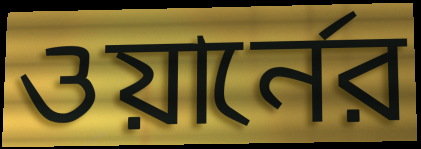
ওয়ার্নের